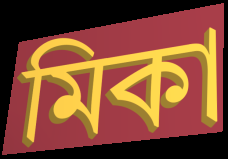
মিকা